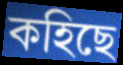
কহিছে